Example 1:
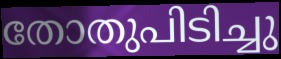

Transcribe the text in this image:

തോതുപിടിച്ചു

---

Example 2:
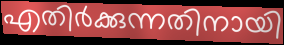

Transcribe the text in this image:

എതിർക്കുന്നതിനായി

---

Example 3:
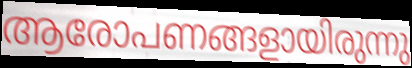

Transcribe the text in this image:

ആരോപണങ്ങളായിരുന്നു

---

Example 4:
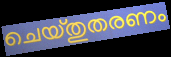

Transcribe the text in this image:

ചെയ്തുതരണം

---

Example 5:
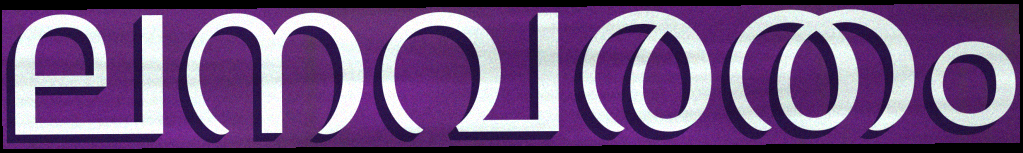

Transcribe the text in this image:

ലനവരതം